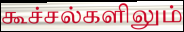
கூச்சல்களிலும்